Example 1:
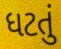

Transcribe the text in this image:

ધટતું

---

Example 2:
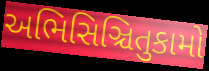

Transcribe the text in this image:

અભિસિઞ્ચિતુકામો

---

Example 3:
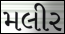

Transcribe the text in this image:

મલીર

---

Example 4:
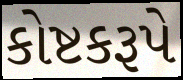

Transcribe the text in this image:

કોષ્ટકરૂપે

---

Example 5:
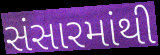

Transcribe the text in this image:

સંસારમાંથી